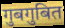
गुबगुबित